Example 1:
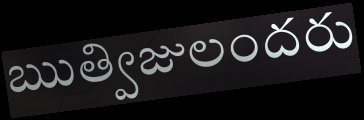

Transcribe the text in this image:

ఋత్విజులందరు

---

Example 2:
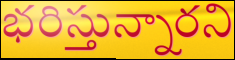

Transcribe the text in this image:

భరిస్తున్నారని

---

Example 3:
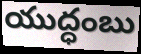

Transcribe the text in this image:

యుద్ధంబు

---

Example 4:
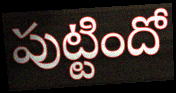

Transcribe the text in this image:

పుట్టిందో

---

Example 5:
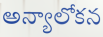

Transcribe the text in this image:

అన్యాలోకన